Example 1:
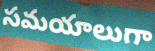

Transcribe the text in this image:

సమయాలుగా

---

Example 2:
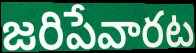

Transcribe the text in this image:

జరిపేవారట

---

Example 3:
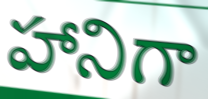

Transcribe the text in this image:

హానిగా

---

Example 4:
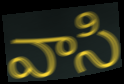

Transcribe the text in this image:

వాసి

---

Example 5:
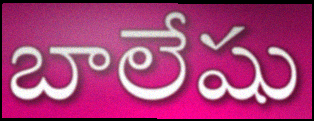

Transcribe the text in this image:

బాలేషు